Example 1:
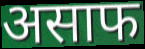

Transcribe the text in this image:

असाफ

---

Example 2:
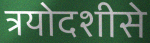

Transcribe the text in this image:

त्रयोदशीसे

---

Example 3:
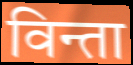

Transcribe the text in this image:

विन्ता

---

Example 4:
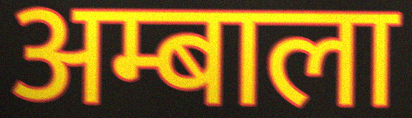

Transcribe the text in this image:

अम्बाला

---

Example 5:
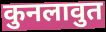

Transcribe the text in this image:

कुनलावुत